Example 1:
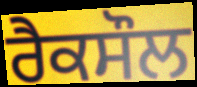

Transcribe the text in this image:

ਰੈਕਸੌਲ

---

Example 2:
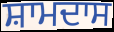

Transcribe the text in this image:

ਸ਼ਾਮਦਾਸ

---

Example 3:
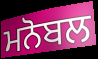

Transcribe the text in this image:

ਮਨੋਬਲ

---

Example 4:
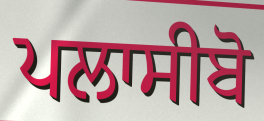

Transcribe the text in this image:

ਪਲਾਸੀਬੋ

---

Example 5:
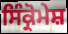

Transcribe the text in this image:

ਸਿੰਕ੍ਰੋਮੇਸ਼